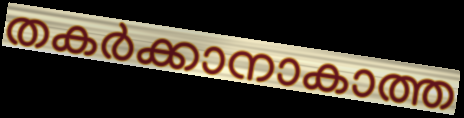
തകർക്കാനാകാത്ത